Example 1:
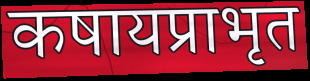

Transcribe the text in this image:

कषायप्राभृत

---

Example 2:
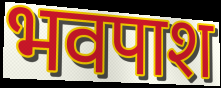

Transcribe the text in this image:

भवपाश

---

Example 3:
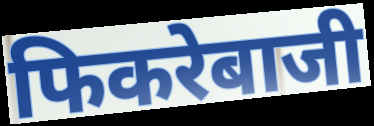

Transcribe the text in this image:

फिकरेबाजी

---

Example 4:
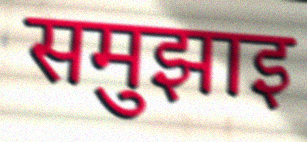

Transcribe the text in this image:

समुझाइ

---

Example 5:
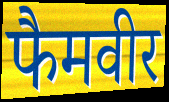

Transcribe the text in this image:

फैमवीर